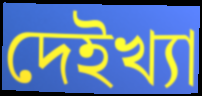
দেইখ্যা